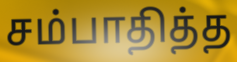
சம்பாதித்த